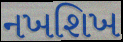
નખશિખ